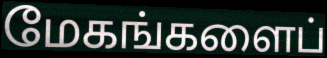
மேகங்களைப்